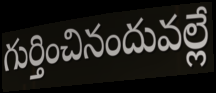
గుర్తించినందువల్లే